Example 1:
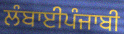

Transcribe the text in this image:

ਲੰਬਾਈਪੰਜਾਬੀ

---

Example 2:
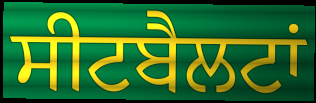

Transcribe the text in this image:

ਸੀਟਬੈਲਟਾਂ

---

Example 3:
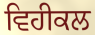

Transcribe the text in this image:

ਵਿਹੀਕਲ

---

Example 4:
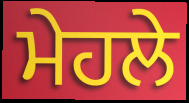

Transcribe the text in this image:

ਮੇਹਲੇ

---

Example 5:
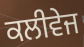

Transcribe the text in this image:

ਕਲੀਵੇਜ